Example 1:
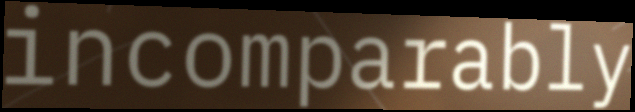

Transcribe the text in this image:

incomparably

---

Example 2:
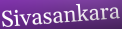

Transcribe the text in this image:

Sivasankara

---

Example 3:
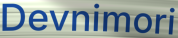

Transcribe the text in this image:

Devnimori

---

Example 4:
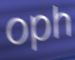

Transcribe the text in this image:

oph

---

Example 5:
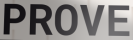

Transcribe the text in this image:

PROVE